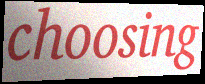
choosing